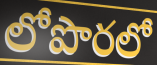
లోపొరలో